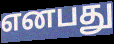
எனபது